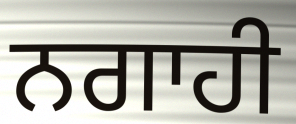
ਨਗਾਹੀ